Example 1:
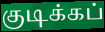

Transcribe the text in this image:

குடிக்கப்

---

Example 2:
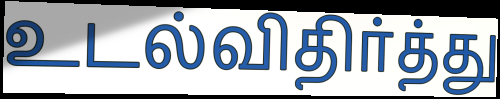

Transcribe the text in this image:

உடல்விதிர்த்து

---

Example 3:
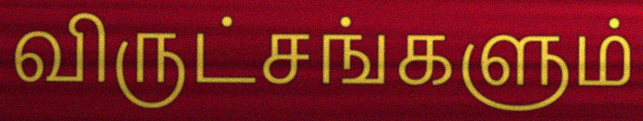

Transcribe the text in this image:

விருட்சங்களும்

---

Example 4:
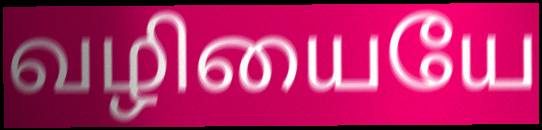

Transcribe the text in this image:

வழியையே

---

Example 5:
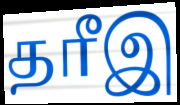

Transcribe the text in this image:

தரீஇ